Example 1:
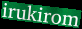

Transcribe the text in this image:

irukirom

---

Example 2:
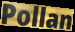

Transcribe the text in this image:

Pollan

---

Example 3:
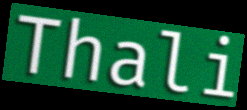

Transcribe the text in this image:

Thali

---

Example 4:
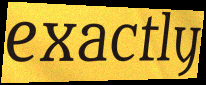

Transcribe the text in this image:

exactly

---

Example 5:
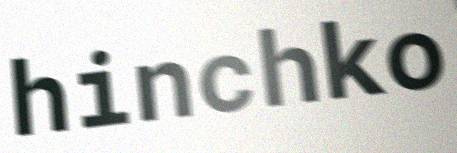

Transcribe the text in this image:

hinchko